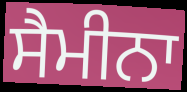
ਸੈਮੀਨਾ